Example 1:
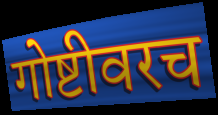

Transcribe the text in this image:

गोष्टीवरच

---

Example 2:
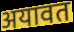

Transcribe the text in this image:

अयावत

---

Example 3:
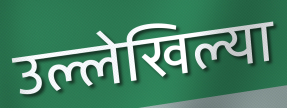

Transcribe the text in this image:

उल्लेखिल्या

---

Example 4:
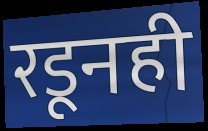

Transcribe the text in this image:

रडूनही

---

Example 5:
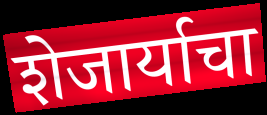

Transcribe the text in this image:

शेजार्याचा